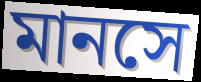
মানসে